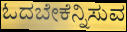
ಓದಬೇಕೆನ್ನಿಸುವ